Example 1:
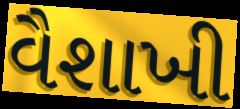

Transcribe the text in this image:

વૈશાખી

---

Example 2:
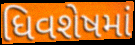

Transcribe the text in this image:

ધિવશેષમાં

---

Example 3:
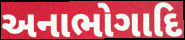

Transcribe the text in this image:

અનાભોગાદિ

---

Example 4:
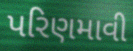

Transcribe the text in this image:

પરિણમાવી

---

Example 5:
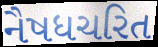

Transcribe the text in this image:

નૈષધચરિત